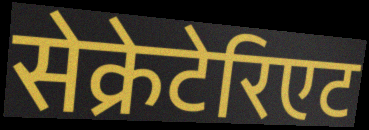
सेक्रेटेरिएट